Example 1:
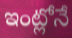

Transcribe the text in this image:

ఇంట్లోనే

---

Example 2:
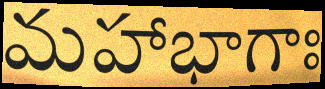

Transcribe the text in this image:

మహాభాగాః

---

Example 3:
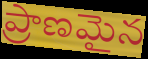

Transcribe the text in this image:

ప్రాణమైన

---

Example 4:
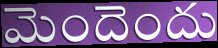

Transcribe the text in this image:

మెందెందు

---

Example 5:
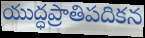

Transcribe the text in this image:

యుద్ధప్రాతిపదికన